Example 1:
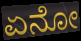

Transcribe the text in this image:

ಏನೋ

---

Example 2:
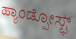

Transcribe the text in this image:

ಹ್ಯಾಂಡ್ಪೋಸ್ಟ್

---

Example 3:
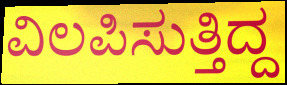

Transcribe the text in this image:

ವಿಲಪಿಸುತ್ತಿದ್ದ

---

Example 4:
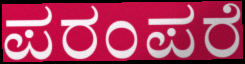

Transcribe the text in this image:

ಪರಂಪರೆ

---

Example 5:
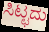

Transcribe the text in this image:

ಸಿಟ್ಟದು